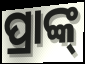
ପ୍ରାଙ୍କ୍